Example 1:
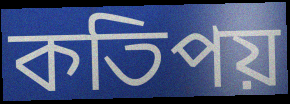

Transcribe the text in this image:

কতিপয়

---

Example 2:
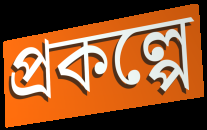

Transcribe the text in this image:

প্রকল্পে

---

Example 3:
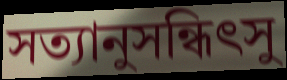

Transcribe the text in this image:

সত্যানুসন্ধিৎসু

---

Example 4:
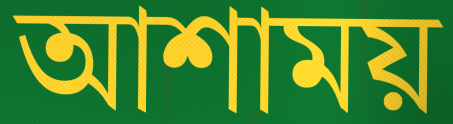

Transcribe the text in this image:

আশাময়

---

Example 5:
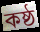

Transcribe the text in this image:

কষ্ঠ